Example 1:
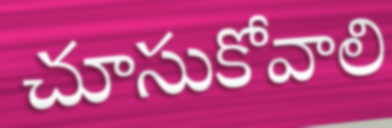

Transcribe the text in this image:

చూసుకోవాలి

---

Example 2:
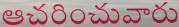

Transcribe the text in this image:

ఆచరించువారు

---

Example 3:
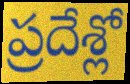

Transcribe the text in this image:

ప్రదేశ్లో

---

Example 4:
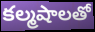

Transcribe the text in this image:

కల్మషాలతో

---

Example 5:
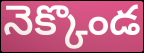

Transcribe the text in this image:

నెక్కొండ